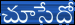
చూసేదో